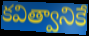
కవిత్వానికే